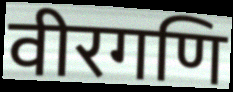
वीरगणि